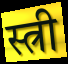
स्‍त्री